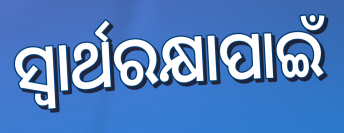
ସ୍ବାର୍ଥରକ୍ଷାପାଇଁ